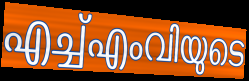
എച്ച്എംവിയുടെ